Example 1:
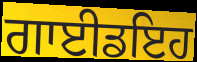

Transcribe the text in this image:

ਗਾਈਡਇਹ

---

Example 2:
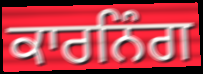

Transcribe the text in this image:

ਕਾਰਨਿੰਗ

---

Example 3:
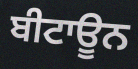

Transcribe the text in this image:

ਬੀਟਾਊਨ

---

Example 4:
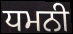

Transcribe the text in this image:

ਧਮਨੀ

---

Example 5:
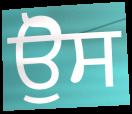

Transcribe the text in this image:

ਉੋਸ